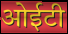
ओईटी